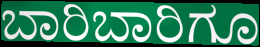
ಬಾರಿಬಾರಿಗೂ